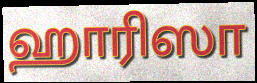
ஹாரிஸா